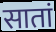
सातां